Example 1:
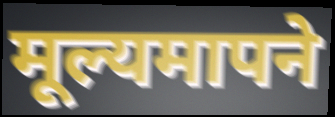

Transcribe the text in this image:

मूल्यमापने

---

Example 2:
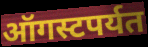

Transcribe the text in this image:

ऑगस्टपर्यत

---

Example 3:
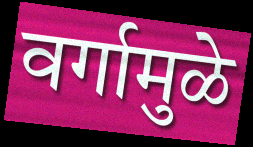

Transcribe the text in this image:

वर्गामुळे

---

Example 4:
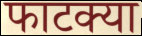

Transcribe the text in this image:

फाटक्या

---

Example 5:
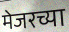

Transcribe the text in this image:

मेजरच्या